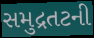
સમુદ્રતટની